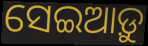
ସେଇଆଡ଼ୁ